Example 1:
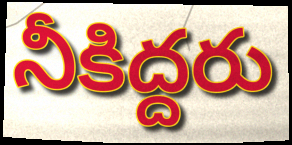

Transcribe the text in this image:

నీకిద్దరు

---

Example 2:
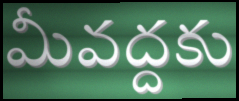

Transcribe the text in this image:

మీవద్దకు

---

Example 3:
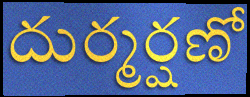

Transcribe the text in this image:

దుర్మర్షణో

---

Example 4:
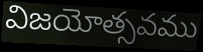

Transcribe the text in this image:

విజయోత్సవము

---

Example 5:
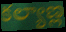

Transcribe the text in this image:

కల్యాణ్ల